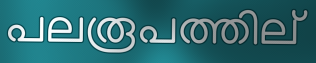
പലരൂപത്തില്